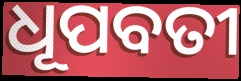
ଧୂପବତୀ